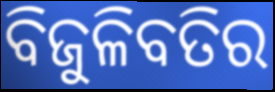
ବିଜୁଳିବତିର